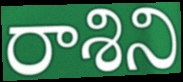
రాశిని